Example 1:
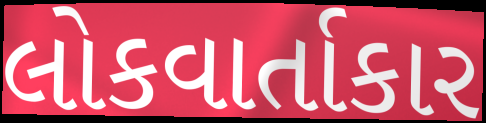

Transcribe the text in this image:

લોકવાર્તાકાર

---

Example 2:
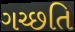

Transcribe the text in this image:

ગચ્છતિ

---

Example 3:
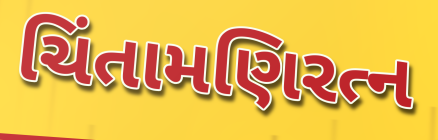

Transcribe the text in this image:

ચિંતામણિરત્ન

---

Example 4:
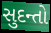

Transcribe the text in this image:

સુદન્તો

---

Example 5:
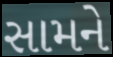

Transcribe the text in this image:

સામને